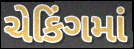
ચેકિંગમાં